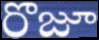
రొజూ